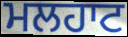
ਮਲਹਾਟ